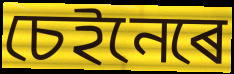
চেইনেৰে